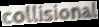
collisional